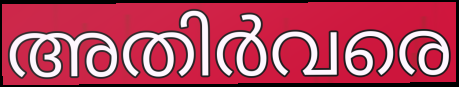
അതിർവരെ